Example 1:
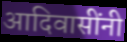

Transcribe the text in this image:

आदिवासींनी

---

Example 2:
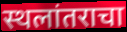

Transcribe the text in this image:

स्थलांतराचा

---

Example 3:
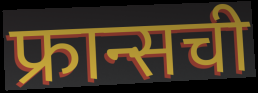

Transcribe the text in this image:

फ्रान्सची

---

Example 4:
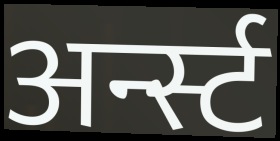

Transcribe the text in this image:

अर्न्स्ट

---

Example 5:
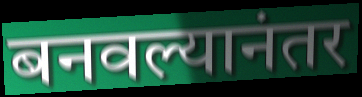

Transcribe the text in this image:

बनवल्यानंतर